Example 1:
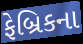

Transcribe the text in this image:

ફેબ્રિકના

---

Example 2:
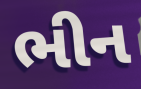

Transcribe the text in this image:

ભીન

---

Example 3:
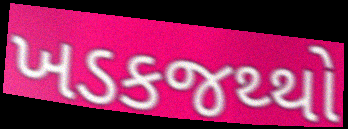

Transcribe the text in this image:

ખડકજથ્થો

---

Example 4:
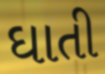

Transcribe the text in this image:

ઘાતી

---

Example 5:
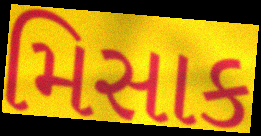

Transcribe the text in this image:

મિસાક